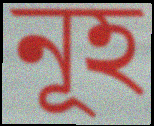
নূহ